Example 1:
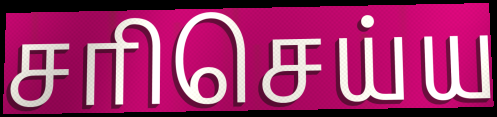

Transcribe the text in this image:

சரிசெய்ய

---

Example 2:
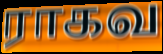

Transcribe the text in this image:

ராகவ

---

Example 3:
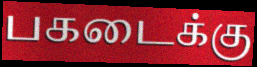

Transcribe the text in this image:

பகடைக்கு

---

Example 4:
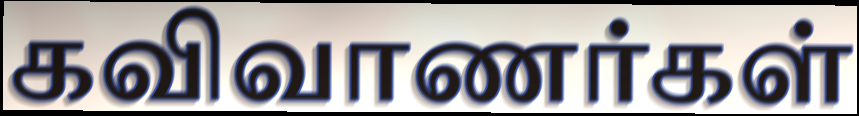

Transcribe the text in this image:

கவிவாணர்கள்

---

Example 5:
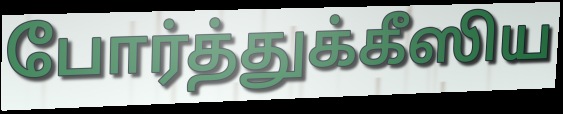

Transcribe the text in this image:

போர்த்துக்கீஸிய